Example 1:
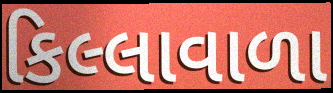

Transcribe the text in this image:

કિલ્લાવાળા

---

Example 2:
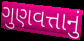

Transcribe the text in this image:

ગુણવત્તાનું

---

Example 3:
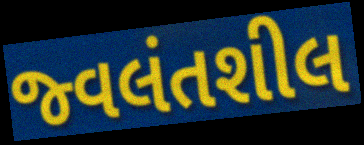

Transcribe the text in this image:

જ્વલંતશીલ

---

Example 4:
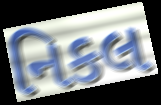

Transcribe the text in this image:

નિકલ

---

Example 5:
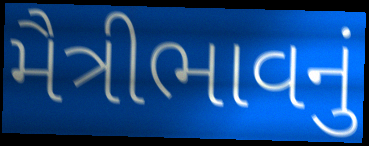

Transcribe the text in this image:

મૈત્રીભાવનું